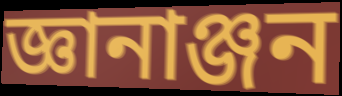
জ্ঞানাঞ্জন